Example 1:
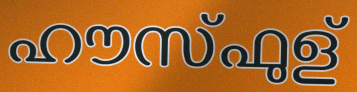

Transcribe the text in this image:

ഹൗസ്ഫുള്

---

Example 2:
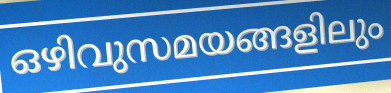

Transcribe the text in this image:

ഒഴിവുസമയങ്ങളിലും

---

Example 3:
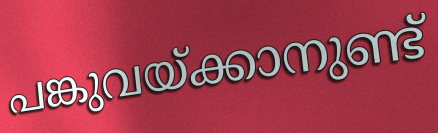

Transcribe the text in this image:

പങ്കുവയ്ക്കാനുണ്ട്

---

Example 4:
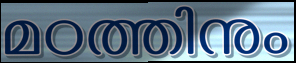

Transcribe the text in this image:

മഠത്തിനും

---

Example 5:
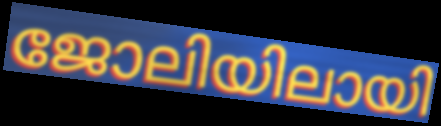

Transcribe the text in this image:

ജോലിയിലായി